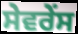
ਸੇਵਰੇਂਸ